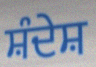
ਸ਼ੰਦੇਸ਼